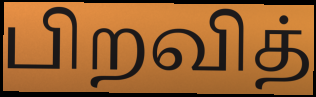
பிறவித்